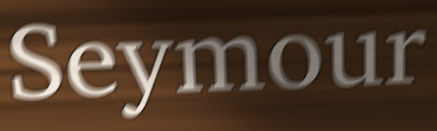
Seymour